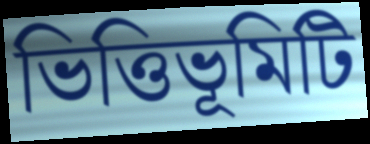
ভিত্তিভূমিটি